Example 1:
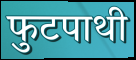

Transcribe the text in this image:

फुटपाथी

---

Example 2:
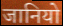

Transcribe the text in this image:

जानियो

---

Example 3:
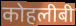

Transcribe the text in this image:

कोहलीबी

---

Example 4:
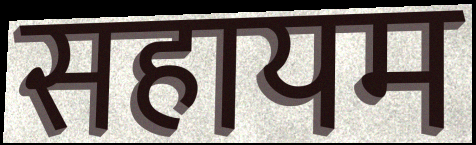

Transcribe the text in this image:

सहायम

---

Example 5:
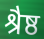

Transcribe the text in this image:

श्रैष्ठ